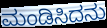
ಮಂಡಿಸಿದನು